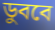
ডুববে